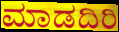
ಮಾಡದಿರಿ